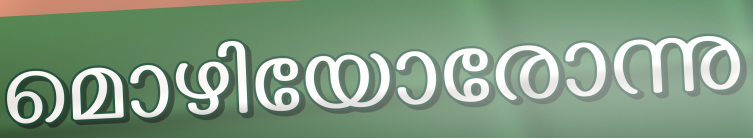
മൊഴിയോരോന്നു